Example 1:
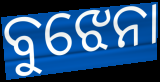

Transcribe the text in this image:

ବୁଝେନା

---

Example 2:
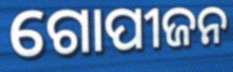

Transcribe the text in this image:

ଗୋପୀଜନ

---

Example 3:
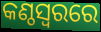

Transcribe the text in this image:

କଣ୍ଠସ୍ୱରରେ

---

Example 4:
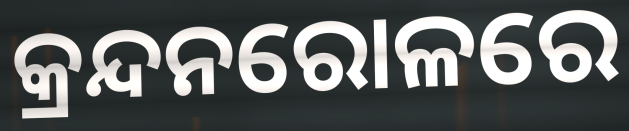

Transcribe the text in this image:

କ୍ରନ୍ଦନରୋଳରେ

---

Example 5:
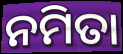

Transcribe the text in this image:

ନମିତା